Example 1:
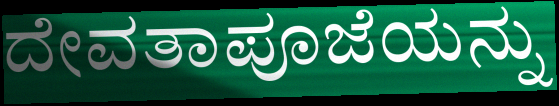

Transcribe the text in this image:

ದೇವತಾಪೂಜೆಯನ್ನು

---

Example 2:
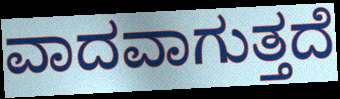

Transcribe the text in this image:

ವಾದವಾಗುತ್ತದೆ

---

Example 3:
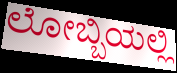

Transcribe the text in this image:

ಲೋಬ್ಬಿಯಲ್ಲಿ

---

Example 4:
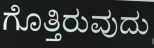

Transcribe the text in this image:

ಗೊತ್ತಿರುವುದು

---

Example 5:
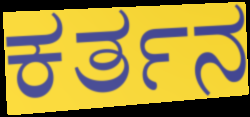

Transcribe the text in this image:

ಕರ್ತನ